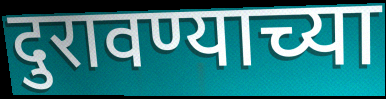
दुरावण्याच्या